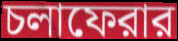
চলাফেরার